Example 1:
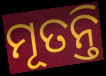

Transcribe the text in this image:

ମୂତନ୍ତି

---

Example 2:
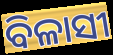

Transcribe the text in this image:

ବିଳାସୀ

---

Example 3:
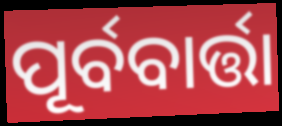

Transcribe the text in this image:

ପୂର୍ବବାର୍ତ୍ତା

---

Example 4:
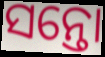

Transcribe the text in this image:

ସନ୍ତୋ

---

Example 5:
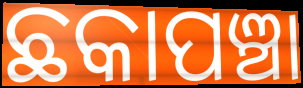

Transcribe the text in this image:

ଛକାପଞ୍ଚା